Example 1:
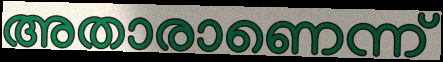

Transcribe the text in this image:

അതാരാണെന്ന്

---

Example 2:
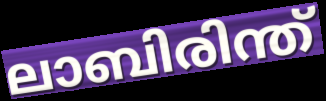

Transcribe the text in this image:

ലാബിരിന്ത്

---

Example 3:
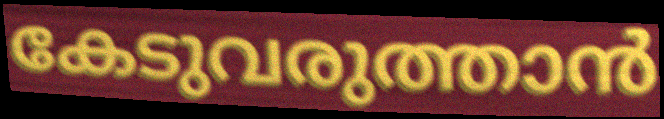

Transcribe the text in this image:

കേടുവരുത്താൻ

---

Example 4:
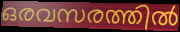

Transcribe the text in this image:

ഒരവസരത്തിൽ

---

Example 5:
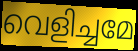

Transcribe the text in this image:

വെളിച്ചമേ